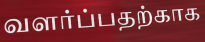
வளர்ப்பதற்காக